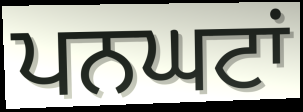
ਪਨਘਟਾਂ